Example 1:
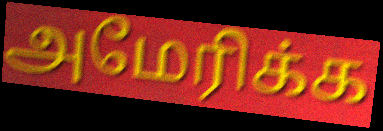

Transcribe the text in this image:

அமேரிக்க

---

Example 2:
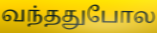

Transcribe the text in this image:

வந்ததுபோல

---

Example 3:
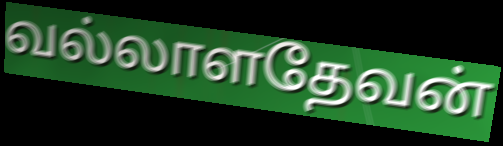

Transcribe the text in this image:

வல்லாளதேவன்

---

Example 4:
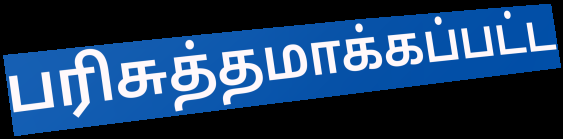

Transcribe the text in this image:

பரிசுத்தமாக்கப்பட்ட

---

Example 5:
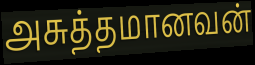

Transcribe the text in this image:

அசுத்தமானவன்